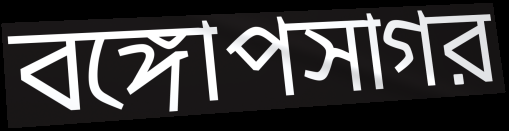
বঙ্গোপসাগর